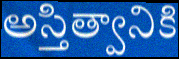
అస్తిత్వానికి